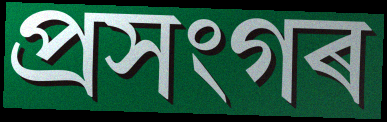
প্ৰসংগৰ